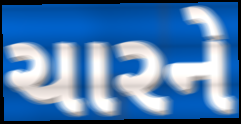
ચારને